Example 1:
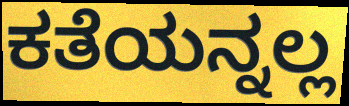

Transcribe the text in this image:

ಕತೆಯನ್ನಲ್ಲ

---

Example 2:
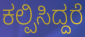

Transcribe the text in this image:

ಕಲ್ಪಿಸಿದ್ದರೆ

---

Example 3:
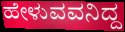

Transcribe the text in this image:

ಹೇಳುವವನಿದ್ದ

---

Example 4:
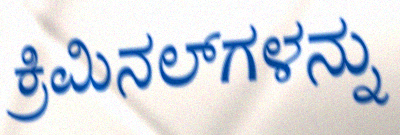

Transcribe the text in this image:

ಕ್ರಿಮಿನಲ್‍ಗಳನ್ನು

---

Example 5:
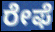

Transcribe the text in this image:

ರೇಫೆ